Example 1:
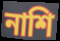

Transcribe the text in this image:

নাশি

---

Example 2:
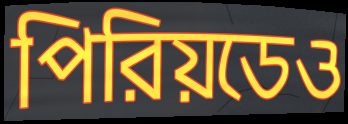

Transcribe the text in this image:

পিরিয়ডেও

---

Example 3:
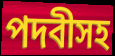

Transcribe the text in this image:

পদবীসহ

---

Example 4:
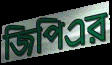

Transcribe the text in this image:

জিপিএর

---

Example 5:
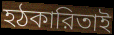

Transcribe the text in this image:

হঠকারিতাই